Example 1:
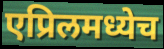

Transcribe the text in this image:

एप्रिलमध्येच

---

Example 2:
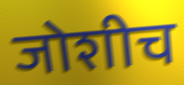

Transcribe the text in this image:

जोशीच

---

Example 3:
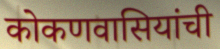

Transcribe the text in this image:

कोकणवासियांची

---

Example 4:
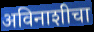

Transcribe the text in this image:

अविनाशीचा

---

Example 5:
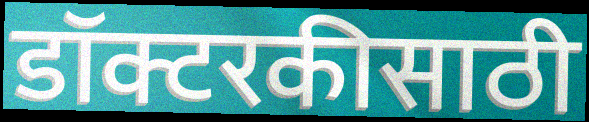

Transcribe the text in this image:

डॉक्टरकीसाठी